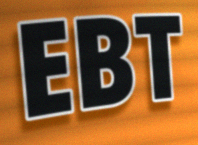
EBT